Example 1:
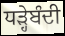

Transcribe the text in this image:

ਧੜ੍ਹੇਬੰਦੀ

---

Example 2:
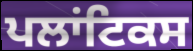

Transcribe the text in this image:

ਪਲਾਂਟਿਕਸ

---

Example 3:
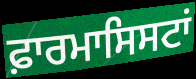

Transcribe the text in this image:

ਫ਼ਾਰਮਾਸਿਸਟਾਂ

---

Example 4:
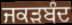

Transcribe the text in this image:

ਜਕੜਬੰਦ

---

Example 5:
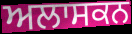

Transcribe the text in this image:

ਅਲਾਸਕਨ